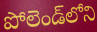
పోలెండ్‌లోని